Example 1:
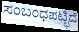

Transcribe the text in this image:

ಸಂಬಂಧಪಟ್ಟಿದೆ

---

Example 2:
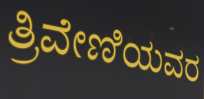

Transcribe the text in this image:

ತ್ರಿವೇಣಿಯವರ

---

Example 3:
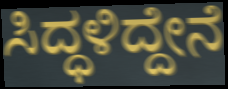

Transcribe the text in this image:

ಸಿದ್ಧಳಿದ್ದೇನೆ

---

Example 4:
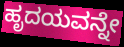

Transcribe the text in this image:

ಹೃದಯವನ್ನೇ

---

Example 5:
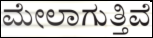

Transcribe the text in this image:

ಮೇಲಾಗುತ್ತಿವೆ